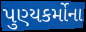
પુણ્યકર્મોના